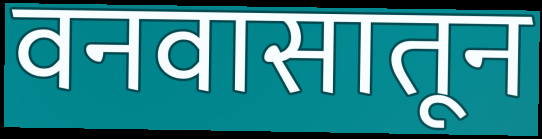
वनवासातून